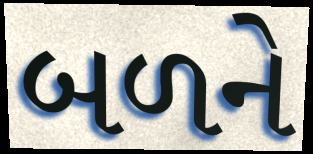
બળને